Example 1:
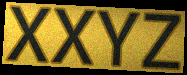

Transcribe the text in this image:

XXYZ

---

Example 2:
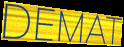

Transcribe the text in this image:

DEMAT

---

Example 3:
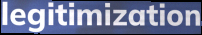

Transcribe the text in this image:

legitimization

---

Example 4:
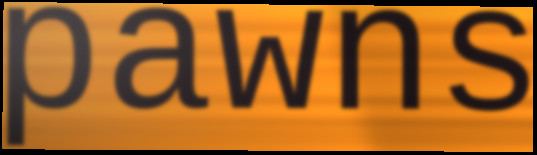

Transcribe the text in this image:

pawns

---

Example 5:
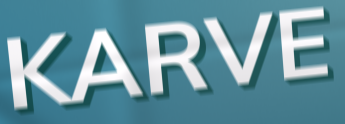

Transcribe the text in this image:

KARVE